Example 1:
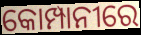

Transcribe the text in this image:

କୋମ୍ପାନୀରେ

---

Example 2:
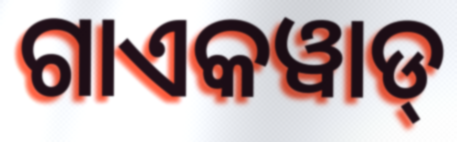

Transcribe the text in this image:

ଗାଏକୱାଡ୍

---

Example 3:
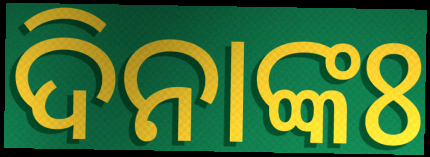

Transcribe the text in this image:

ଦିନାଙ୍କଃ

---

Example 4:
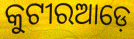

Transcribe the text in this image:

କୁଟୀରଆଡ଼େ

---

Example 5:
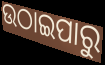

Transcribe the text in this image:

ଉଠାଇପାରୁ